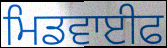
ਮਿਡਵਾਈਫ